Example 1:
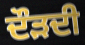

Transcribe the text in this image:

ਦੌੜਦੀ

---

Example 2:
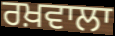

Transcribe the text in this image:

ਰਖ਼ਵਾਲਾ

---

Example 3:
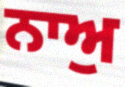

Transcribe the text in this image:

ਨਾਅੁ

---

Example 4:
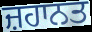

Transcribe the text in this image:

ਜ਼ਹਾਨਤ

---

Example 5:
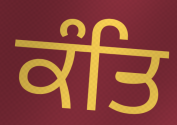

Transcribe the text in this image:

ਕੰਤਿ